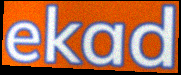
ekad